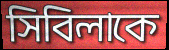
সিবিলাকে